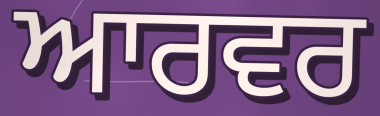
ਆਰਵਰ